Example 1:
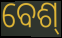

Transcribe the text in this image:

ବେଶ୍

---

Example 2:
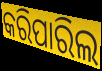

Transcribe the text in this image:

କରିପାରିଲ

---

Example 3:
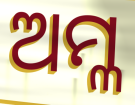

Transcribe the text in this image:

ଅମ୍ଳ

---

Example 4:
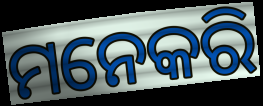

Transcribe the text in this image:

ମନେକରି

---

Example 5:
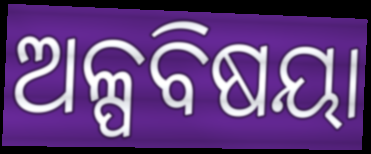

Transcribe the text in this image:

ଅଳ୍ପବିଷୟା